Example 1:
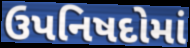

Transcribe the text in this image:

ઉપનિષદોમાં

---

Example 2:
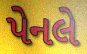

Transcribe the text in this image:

પેનલે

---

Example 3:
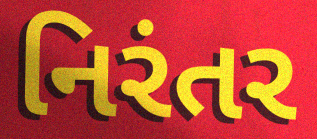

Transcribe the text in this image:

નિરંતર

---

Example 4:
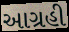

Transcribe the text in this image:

આગ્રહી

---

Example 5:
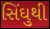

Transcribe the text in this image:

સિંઘુથી